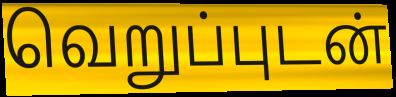
வெறுப்புடன்